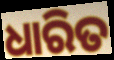
ଧାରିତ